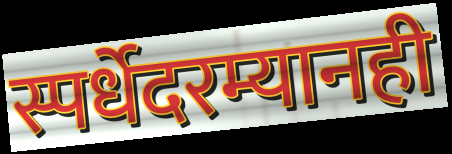
स्पर्धेदरम्यानही